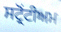
ਸਟ੍ਰੋਂਟੀਅਮ